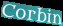
Corbin